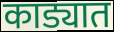
काड्यात